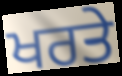
ਖਰਤੇ